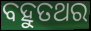
ବହୁତଥର